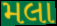
મલા